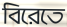
বিরেতে